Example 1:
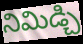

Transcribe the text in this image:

నిమిడ్చి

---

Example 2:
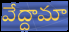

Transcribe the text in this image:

వేద్దామా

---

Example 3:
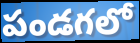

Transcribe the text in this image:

పండగలో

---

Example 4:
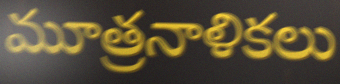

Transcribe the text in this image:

మూత్రనాళికలు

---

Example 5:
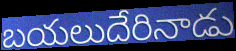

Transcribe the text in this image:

బయలుదేరినాడు